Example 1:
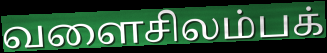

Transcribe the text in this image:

வளைசிலம்பக்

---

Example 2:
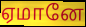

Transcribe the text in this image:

ஏமானே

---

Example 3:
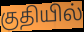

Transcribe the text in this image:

குதியில்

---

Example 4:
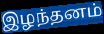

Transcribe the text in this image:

இழந்தனம்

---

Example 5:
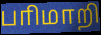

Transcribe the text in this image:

பரிமாறி